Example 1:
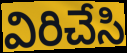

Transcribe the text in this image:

విరిచేసి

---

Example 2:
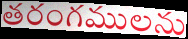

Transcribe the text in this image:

తరంగములను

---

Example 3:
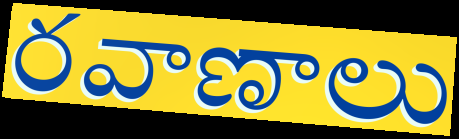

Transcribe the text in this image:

రవాణాలు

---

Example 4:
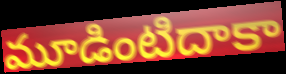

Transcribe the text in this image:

మూడింటిదాకా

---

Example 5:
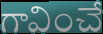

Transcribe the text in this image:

గావించే